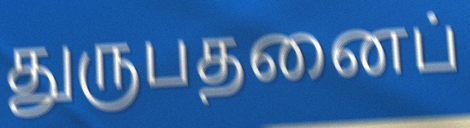
துருபதனைப்